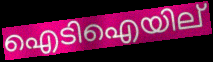
ഐടിഐയില്